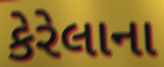
કેરેલાના